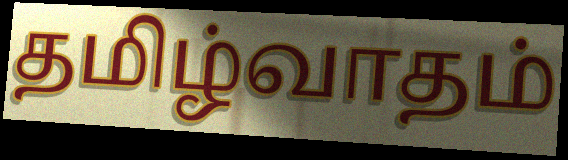
தமிழ்வாதம்